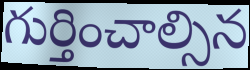
గుర్తించాల్సిన